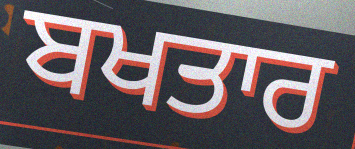
ਬਖਤਾਰ